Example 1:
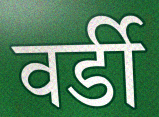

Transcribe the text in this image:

वर्डी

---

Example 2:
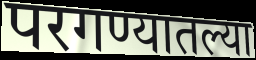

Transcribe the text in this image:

परगण्यातल्या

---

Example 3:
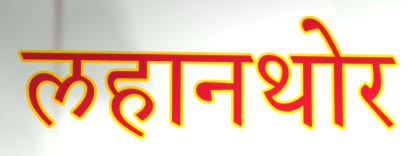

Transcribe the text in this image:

लहानथोर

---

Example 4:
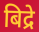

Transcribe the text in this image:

बिद्रे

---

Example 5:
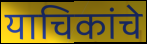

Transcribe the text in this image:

याचिकांचे